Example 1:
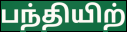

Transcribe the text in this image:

பந்தியிற்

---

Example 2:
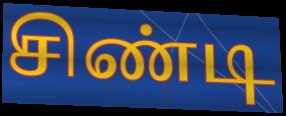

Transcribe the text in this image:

சிண்டி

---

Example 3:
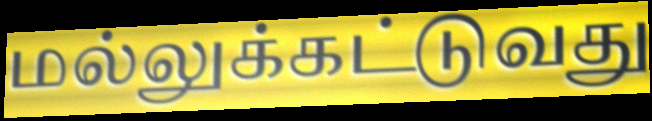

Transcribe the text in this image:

மல்லுக்கட்டுவது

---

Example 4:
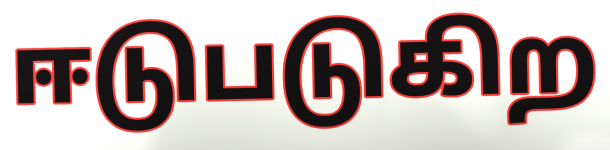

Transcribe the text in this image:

ஈடுபடுகிற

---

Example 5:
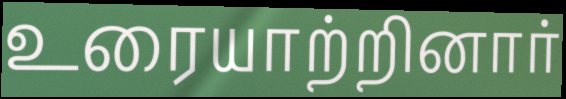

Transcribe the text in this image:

உரையாற்றினார்